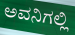
ಅವನಿಗಲ್ಲಿ